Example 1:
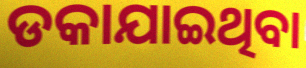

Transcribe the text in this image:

ଡକାଯାଇଥିବା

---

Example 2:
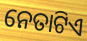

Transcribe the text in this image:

ନେତାଟିଏ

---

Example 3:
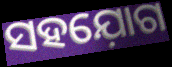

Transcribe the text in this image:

ସହଯ଼ୋଗ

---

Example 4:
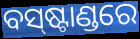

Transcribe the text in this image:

ବସ୍‍ଷ୍ଟାଣ୍ଡରେ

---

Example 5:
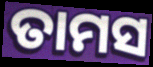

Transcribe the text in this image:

ତାମସ